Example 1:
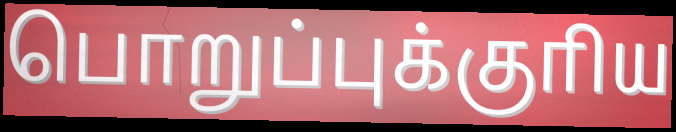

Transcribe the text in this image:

பொறுப்புக்குரிய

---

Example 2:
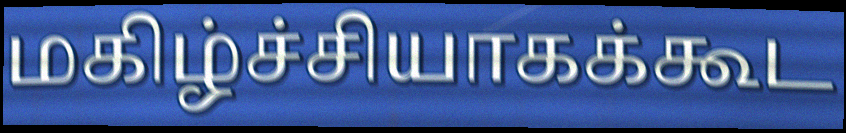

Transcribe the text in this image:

மகிழ்ச்சியாகக்கூட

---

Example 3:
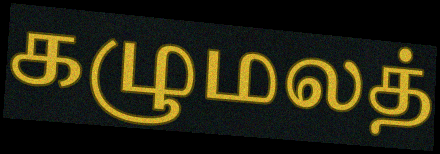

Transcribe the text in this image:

கழுமலத்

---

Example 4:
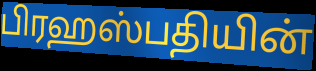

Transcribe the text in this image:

பிரஹஸ்பதியின்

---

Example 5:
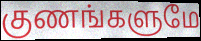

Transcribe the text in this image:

குணங்களுமே